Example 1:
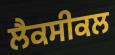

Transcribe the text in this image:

ਲੈਕਸੀਕਲ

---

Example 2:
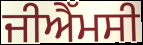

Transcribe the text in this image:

ਜੀਐੱਮਸੀ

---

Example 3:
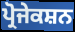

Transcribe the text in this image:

ਪ੍ਰੋਜੇਕਸ਼ਨ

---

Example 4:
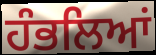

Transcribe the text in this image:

ਹੰਭਲਿਆਂ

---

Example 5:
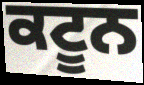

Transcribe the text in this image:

ਕਟੂਨ